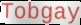
Tobgay